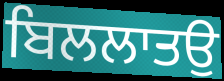
ਬਿਲਲਾਤਉ